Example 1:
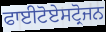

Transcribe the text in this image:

ਫਾਈਟੋਏਸਟ੍ਰੋਜਨ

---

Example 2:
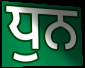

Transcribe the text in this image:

ਧੁਨ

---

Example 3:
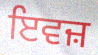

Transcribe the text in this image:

ਇਵਜ਼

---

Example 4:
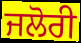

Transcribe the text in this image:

ਜਲੋਰੀ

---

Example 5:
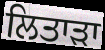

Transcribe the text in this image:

ਲਿਤਾੜਾ